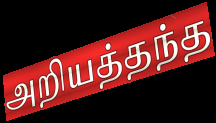
அறியத்தந்த